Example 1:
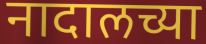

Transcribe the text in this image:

नादालच्या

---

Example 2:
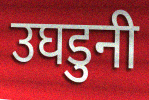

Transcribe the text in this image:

उघडुनी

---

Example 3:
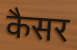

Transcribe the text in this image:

कैसर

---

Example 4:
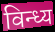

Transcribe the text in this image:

विन्ध्य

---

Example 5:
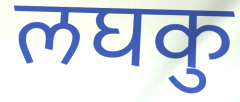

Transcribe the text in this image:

लघकु